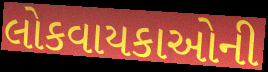
લોકવાયકાઓની